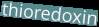
thioredoxin